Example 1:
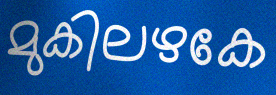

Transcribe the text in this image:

മുകിലഴകേ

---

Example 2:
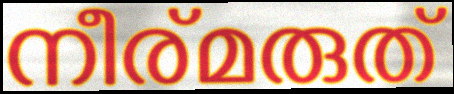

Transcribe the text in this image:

നീര്മരുത്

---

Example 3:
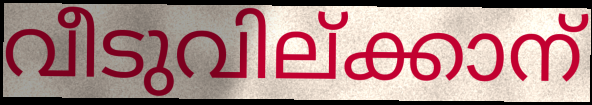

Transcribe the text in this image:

വീടുവില്ക്കാന്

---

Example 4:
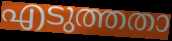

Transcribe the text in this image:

എടുത്തതാ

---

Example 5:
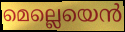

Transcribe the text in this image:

മെല്ലെയെൻ